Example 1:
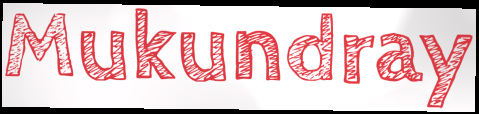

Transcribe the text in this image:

Mukundray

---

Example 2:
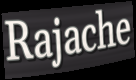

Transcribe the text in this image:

Rajache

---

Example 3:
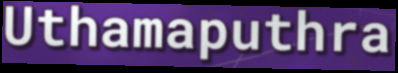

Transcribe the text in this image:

Uthamaputhra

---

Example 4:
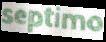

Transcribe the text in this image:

septimo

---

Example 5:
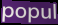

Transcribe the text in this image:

popul